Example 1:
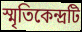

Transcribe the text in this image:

স্মৃতিকেন্দ্রটি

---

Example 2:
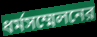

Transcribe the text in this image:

ধর্মসম্মেলনের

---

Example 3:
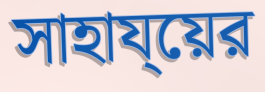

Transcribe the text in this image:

সাহায্য়ের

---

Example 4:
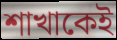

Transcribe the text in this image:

শাখাকেই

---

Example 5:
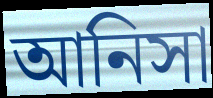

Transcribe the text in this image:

আনিসা